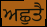
ਅਛੁਤੈ